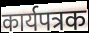
कार्यपत्रक